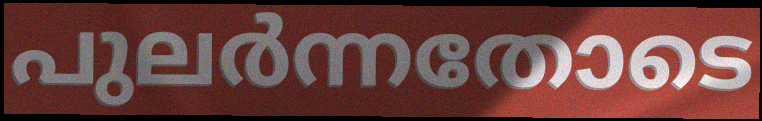
പുലർന്നതോടെ